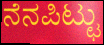
ನೆನಪಿಟ್ಟು